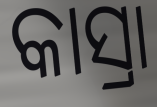
କାସ୍ରା